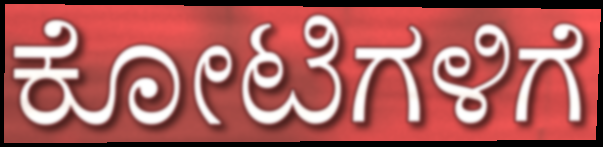
ಕೋಟಿಗಳಿಗೆ